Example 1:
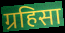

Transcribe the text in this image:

ग्रहिसा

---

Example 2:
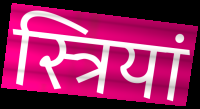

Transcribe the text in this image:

स्त्रियां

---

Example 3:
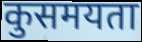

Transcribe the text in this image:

कुसमयता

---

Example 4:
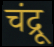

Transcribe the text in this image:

चंद्रू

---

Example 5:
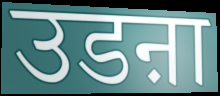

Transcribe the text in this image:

उडऩा